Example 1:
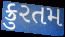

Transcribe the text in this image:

ક્રુરતમ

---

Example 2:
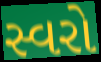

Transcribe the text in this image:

સ્વરો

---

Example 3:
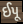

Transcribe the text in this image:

ઈપૂ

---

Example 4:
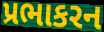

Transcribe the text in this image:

પ્રભાકરન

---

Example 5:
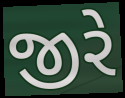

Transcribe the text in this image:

જીરે